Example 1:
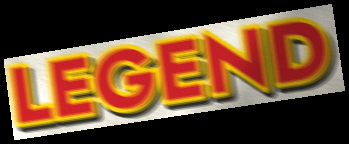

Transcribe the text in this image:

LEGEND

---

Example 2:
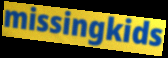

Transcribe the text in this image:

missingkids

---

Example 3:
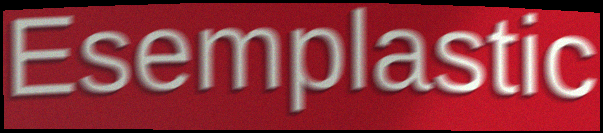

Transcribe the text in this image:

Esemplastic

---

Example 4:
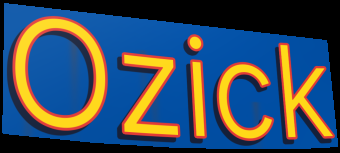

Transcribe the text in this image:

Ozick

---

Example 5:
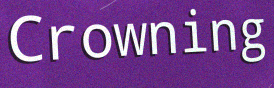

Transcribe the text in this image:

Crowning